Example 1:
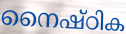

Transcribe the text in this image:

നൈഷ്ഠിക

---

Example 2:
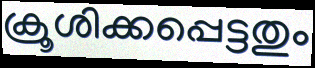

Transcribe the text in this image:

ക്രൂശിക്കപ്പെട്ടതും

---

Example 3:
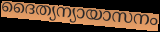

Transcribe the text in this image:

ദൈത്യന്യായാസനം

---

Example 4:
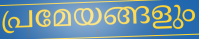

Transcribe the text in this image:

പ്രമേയങ്ങളും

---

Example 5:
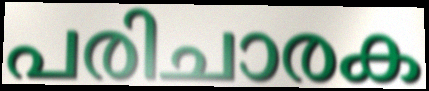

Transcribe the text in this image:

പരിചാരക